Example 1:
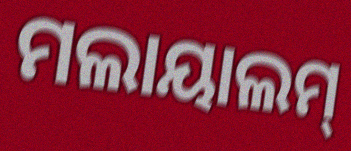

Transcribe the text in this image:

ମଲାୟାଲମ୍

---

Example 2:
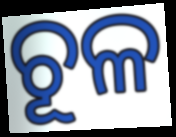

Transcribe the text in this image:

ଚୂଳ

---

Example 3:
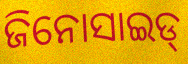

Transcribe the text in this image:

ଜିନୋସାଇଡ୍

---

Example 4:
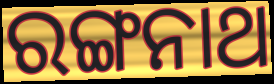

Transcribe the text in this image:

ରଙ୍ଗନାଥ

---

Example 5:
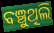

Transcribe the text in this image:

ବଞ୍ଚୁଥିଲି